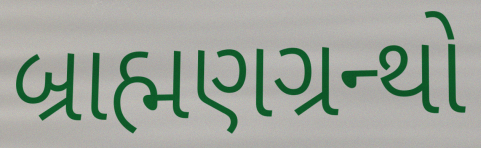
બ્રાહ્મણગ્રન્થો